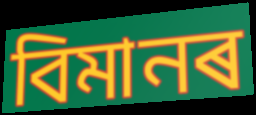
বিমানৰ